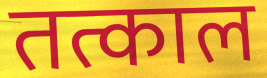
तत्‍काल